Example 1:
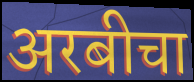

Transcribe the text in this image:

अरबीचा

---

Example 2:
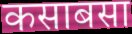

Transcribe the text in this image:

कसाबसा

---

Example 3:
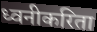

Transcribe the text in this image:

ध्वनीकरिता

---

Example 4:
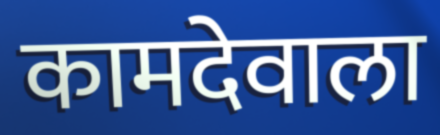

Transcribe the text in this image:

कामदेवाला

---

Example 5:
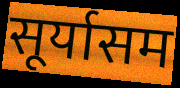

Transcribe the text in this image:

सूर्यासम